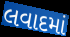
લવાદમાં